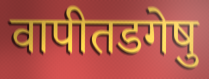
वापीतडगेषु